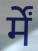
र्में